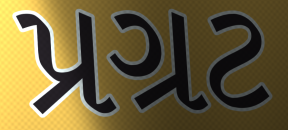
પ્રગ્રટ